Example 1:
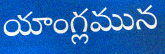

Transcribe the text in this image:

యాంగ్లమున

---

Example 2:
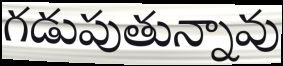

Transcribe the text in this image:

గడుపుతున్నావు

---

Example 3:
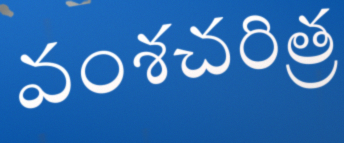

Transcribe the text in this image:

వంశచరిత్ర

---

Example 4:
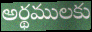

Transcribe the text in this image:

అర్థములకు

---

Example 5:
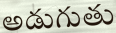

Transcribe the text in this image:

అడుగుతు